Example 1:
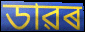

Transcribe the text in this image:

ডাৱৰ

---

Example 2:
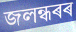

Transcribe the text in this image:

জলন্ধৰৰ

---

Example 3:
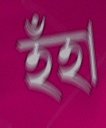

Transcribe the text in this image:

হঁহা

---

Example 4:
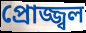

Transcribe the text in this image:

প্ৰোজ্জ্বল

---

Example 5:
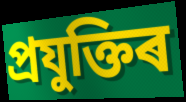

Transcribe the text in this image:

প্ৰযুক্তিৰ